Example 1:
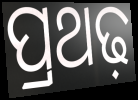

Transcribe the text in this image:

ପ୍ରଥଢ଼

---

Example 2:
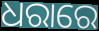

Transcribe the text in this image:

ଧରାରେ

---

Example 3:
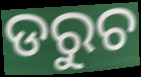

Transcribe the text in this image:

ଡରୁଚ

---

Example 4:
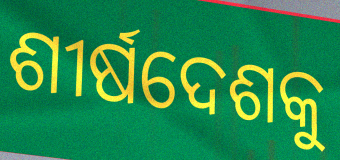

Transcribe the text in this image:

ଶୀର୍ଷଦେଶକୁ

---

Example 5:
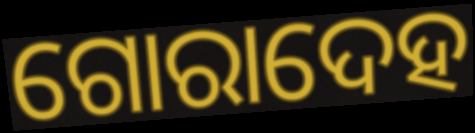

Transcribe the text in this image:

ଗୋରାଦେହ